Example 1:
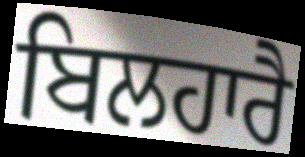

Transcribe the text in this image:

ਬਿਲਹਾਰੈ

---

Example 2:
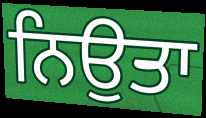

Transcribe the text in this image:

ਨਿਉਤਾ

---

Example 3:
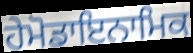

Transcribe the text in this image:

ਹੇਮੋਡਾਇਨਾਮਿਕ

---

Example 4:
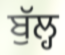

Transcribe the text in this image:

ਬੁੱਲ੍ਹ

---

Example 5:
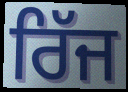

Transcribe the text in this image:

ਰਿੱਜ